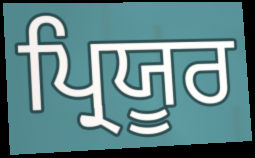
ਪ੍ਰਿਯੂਰ